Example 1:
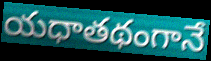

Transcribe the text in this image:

యధాతథంగానే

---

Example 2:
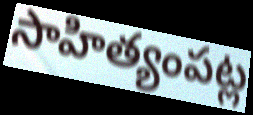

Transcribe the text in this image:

సాహిత్యంపట్ల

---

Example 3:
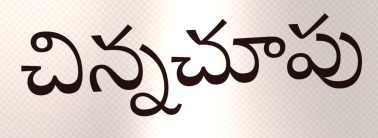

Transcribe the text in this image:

చిన్నచూపు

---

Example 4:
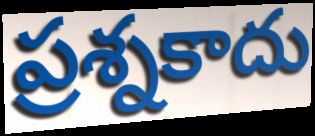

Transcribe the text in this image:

ప్రశ్నకాదు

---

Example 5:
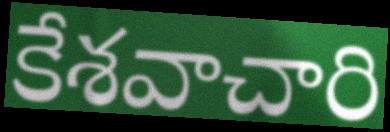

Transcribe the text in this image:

కేశవాచారి